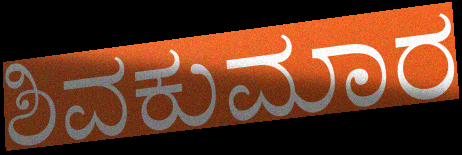
ಶಿವಕುಮಾರ